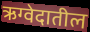
ऋग्वेदातील